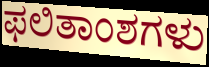
ಫಲಿತಾಂಶಗಳು